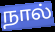
நால்